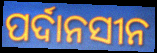
ପର୍ଦାନସୀନ